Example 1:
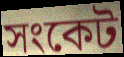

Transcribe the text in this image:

সংকেট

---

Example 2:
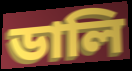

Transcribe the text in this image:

ডালি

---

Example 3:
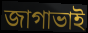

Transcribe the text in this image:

জাগাভাই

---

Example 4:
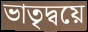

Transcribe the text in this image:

ভাতৃদ্বয়ে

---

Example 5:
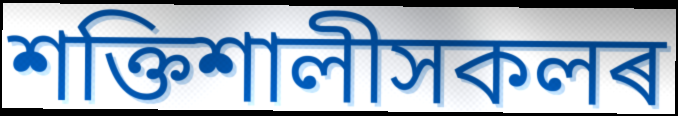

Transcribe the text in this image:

শক্তিশালীসকলৰ